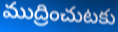
ముద్రించుటకు